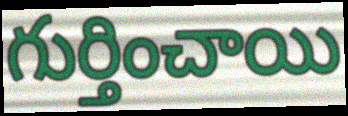
గుర్తించాయి